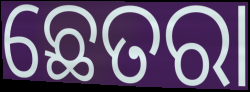
ଛେତରା